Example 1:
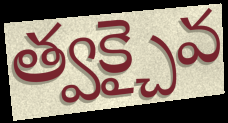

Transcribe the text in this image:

త్వక్చైవ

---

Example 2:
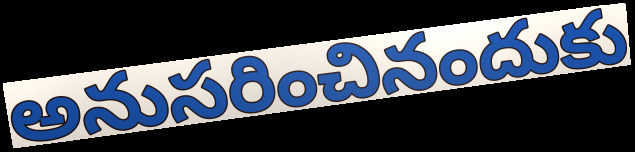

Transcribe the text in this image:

అనుసరించినందుకు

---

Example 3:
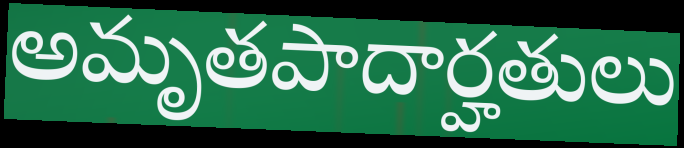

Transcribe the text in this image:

అమృతపాదార్హతులు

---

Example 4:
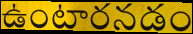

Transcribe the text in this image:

ఉంటారనడం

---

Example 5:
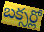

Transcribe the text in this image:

బక్సర్లో